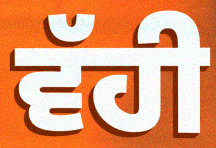
ਵੱਹੀ